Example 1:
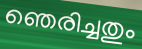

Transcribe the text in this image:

ഞെരിച്ചതും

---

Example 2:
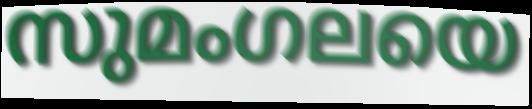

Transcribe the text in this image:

സുമംഗലയെ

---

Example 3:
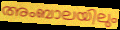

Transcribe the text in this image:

അംബാലയിലും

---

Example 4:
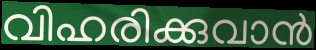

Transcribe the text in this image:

വിഹരിക്കുവാൻ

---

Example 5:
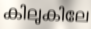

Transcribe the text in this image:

കിലുകിലേ